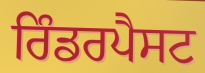
ਰਿੰਡਰਪੈਸਟ